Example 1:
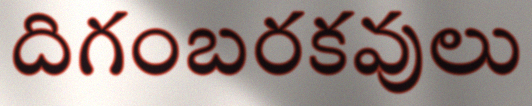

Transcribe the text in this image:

దిగంబరకవులు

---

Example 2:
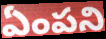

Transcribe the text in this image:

ఏంపని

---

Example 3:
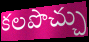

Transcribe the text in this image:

కలపొచ్చు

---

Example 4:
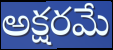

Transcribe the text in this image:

అక్షరమే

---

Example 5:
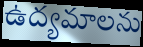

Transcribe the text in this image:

ఉద్యమాలను